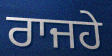
ਰਾਜਹੇ